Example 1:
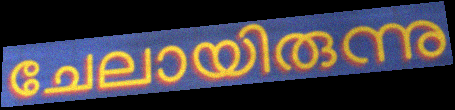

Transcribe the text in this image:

ചേലായിരുന്നു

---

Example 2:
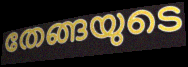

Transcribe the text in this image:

തേങ്ങയുടെ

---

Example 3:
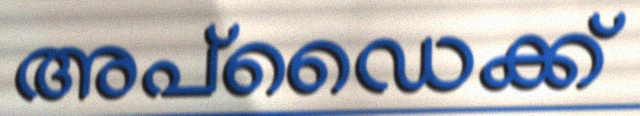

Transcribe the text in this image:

അപ്ഡൈക്ക്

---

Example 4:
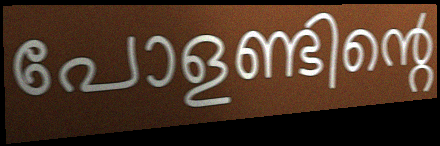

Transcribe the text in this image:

പോളണ്ടിന്റെ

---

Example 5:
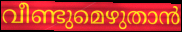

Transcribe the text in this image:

വീണ്ടുമെഴുതാൻ